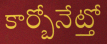
కార్బోనేట్తో